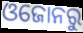
ଓଜୋନରୁ